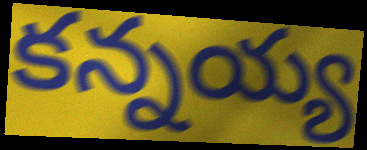
కన్నయ్య